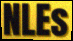
NLEs